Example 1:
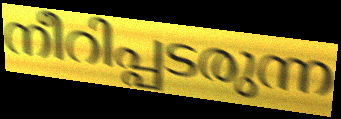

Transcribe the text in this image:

നീറിപ്പടരുന്ന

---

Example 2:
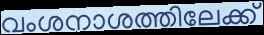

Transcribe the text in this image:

വംശനാശത്തിലേക്ക്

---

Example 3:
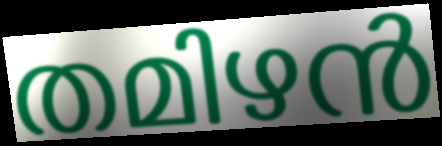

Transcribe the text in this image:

തമിഴൻ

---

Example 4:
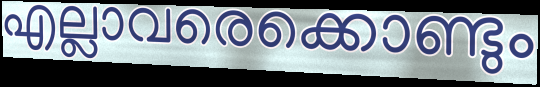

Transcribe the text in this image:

എല്ലാവരെക്കൊണ്ടും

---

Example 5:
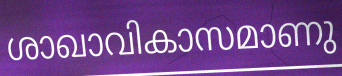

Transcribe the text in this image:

ശാഖാവികാസമാണു